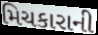
મિચકારાની